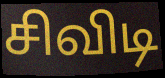
சிவிடி